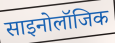
साइनोलॉजिक